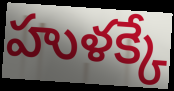
హుళక్కే